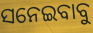
ସନେଇବାବୁ